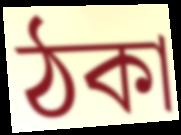
ঠকা